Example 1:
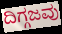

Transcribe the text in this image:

ದಿಗ್ಗಜವು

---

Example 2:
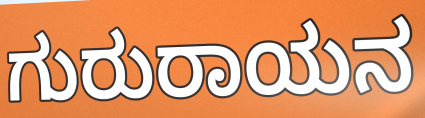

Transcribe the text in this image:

ಗುರುರಾಯನ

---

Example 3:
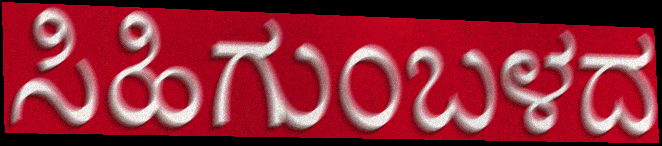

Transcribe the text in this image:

ಸಿಹಿಗುಂಬಳದ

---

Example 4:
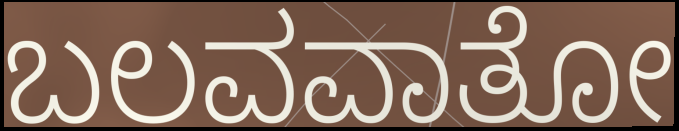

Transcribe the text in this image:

ಬಲವವಾತೋ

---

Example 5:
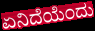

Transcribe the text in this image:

ಏನಿದೆಯೆಂದು